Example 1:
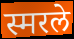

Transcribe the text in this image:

स्मरले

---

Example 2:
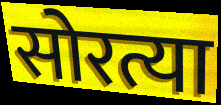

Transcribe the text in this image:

सोरत्या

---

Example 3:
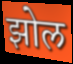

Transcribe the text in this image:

झोल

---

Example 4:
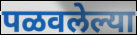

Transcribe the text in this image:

पळवलेल्या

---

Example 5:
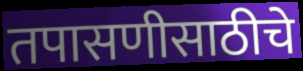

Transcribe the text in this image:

तपासणीसाठीचे